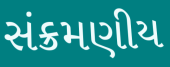
સંક્રમણીય